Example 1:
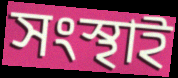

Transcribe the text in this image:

সংস্থাই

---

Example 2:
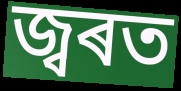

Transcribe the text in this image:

জ্বৰত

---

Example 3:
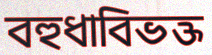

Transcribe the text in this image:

বহুধাবিভক্ত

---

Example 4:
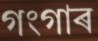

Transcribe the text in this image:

গংগাৰ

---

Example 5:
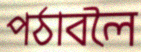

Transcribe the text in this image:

পঠাবলৈ